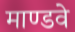
माण्डवे